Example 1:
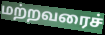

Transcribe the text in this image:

மற்றவரைச்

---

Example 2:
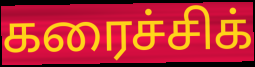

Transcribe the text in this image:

கரைச்சிக்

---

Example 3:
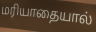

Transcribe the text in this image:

மரியாதையால்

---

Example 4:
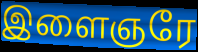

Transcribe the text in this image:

இளைஞரே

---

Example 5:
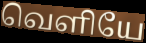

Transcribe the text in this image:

வெளியே